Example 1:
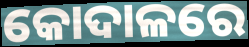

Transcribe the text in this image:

କୋଦାଳରେ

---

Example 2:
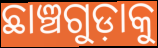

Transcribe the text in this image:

ଛାଞ୍ଚଗୁଡ଼ାକୁ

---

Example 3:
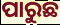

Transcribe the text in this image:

ପାରୁଛ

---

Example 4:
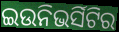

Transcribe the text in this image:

ଇଉନିଭର୍ସିଟିର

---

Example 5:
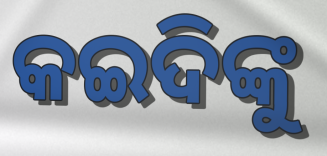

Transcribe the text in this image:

କଇଦିଙ୍କୁ